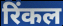
रिंकल